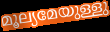
മൂല്യമേയുള്ളു